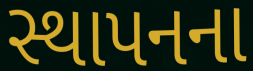
સ્થાપનના